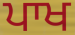
ਪਾਖ